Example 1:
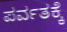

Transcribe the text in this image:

ಪರ್ವತಕ್ಕೆ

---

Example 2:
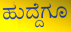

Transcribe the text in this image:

ಹುದ್ದೆಗೂ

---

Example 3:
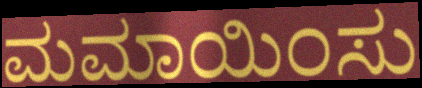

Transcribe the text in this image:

ಮಮಾಯಿಂಸು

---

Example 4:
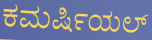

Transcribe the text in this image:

ಕಮರ್ಷಿಯಲ್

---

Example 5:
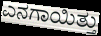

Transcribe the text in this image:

ಎನಗಾಯಿತ್ತು